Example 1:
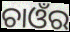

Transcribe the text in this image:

ଚାଓଁର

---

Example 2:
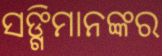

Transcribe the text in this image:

ସଙ୍ଗିମାନଙ୍କର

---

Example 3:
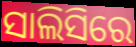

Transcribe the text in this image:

ସାଲିସିରେ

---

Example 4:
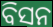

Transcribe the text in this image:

ବିସନ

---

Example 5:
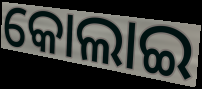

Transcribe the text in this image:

କୋଲାଇ